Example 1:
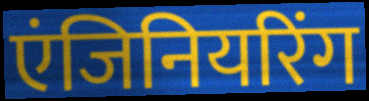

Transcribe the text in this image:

एंजिनियरिंग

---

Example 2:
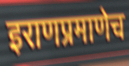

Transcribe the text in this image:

इराणप्रमाणेच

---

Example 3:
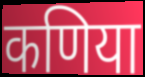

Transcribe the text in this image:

कणिया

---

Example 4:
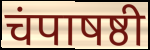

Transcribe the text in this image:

चंपाषष्ठी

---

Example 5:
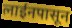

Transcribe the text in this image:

लाईनपासून